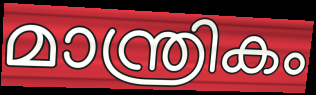
മാന്ത്രികം